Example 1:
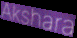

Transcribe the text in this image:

Akshara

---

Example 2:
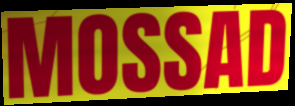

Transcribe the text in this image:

MOSSAD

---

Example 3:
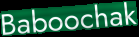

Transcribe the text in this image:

Baboochak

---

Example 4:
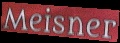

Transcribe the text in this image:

Meisner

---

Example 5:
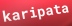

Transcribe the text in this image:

karipata